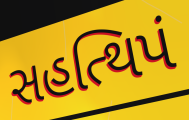
સહત્થિપં